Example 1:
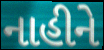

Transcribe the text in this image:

નાહીને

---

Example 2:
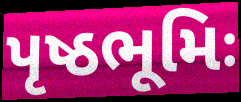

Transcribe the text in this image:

પૃષ્ઠભૂમિઃ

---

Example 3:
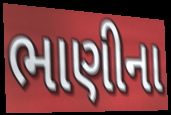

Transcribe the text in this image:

ભાણીના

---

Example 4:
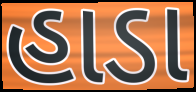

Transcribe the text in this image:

હાડા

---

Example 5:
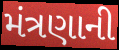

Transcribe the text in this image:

મંત્રણાની